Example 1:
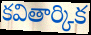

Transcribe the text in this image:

కవితార్కిక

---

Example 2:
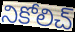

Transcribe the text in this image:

నికోలిచ్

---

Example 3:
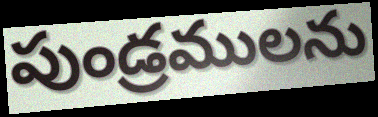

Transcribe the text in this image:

పుండ్రములను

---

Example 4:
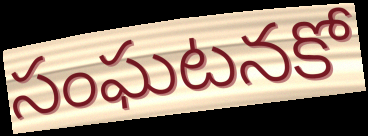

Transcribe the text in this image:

సంఘటనకో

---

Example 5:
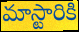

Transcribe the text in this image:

మాస్టారికి